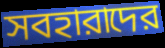
সবহারাদের